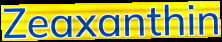
Zeaxanthin